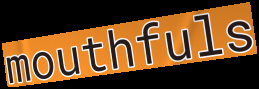
mouthfuls